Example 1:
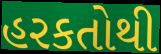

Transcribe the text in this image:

હરકતોથી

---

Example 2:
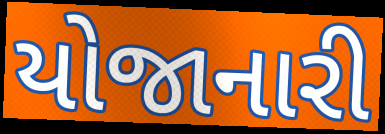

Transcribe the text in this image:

યોજાનારી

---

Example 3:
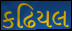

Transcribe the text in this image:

કઢિયલ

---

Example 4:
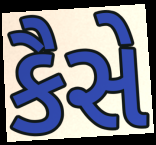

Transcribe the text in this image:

કૈસે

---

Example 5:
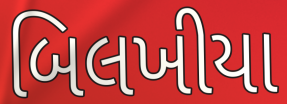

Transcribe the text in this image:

બિલખીયા